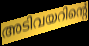
അടിവയറിന്റെ